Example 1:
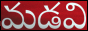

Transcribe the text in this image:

మడవి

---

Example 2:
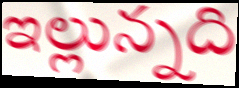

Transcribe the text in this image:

ఇల్లున్నది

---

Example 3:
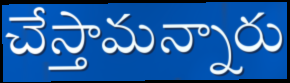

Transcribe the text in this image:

చేస్తామన్నారు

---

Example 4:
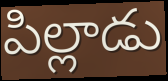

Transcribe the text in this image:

పిల్లాడు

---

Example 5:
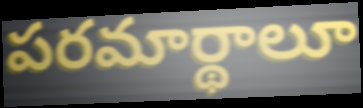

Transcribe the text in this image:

పరమార్థాలూ